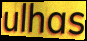
ulhas